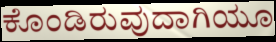
ಕೊಂಡಿರುವುದಾಗಿಯೂ